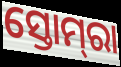
ସ୍ତୋମ୍‌ରା